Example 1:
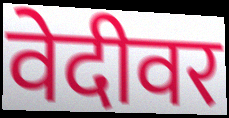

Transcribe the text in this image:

वेदीवर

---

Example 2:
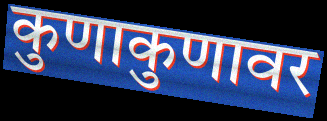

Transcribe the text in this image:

कुणाकुणावर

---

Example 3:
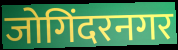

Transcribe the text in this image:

जोगिंदरनगर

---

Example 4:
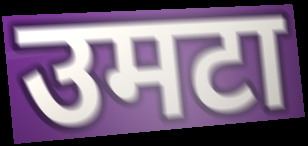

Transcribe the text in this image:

उमटा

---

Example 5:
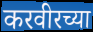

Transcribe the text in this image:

करवीरच्या